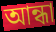
আন্ধা